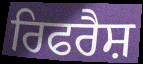
ਰਿਫਰੈਸ਼